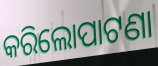
କରିଲୋପାଟଣା